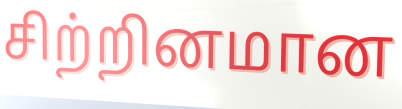
சிற்றினமான